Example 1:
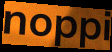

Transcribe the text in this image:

noppi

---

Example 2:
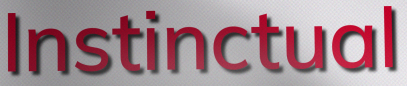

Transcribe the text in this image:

Instinctual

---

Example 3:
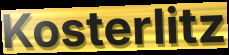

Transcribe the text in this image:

Kosterlitz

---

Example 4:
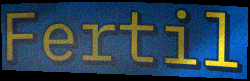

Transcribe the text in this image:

Fertil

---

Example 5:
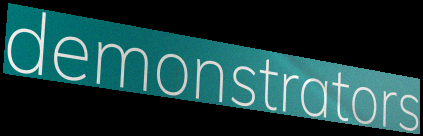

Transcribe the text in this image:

demonstrators